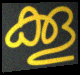
ക്കൂ